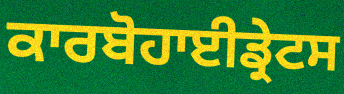
ਕਾਰਬੋਹਾਈਡ੍ਰੇਟਸ